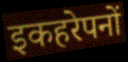
इकहरेपनों